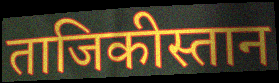
ताजिकीस्तान